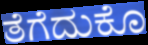
ತೆಗೆದುಕೊ